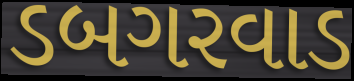
ડબગરવાડ